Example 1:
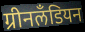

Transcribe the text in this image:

ग्रीनलॅंडियन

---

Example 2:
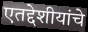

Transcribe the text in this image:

एतद्देशीयांचे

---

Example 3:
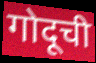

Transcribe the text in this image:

गोदूची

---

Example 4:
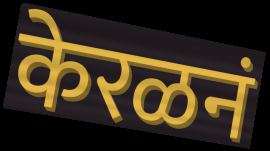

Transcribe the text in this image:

केरळनं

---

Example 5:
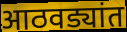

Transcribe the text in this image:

आठवड्यांत